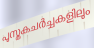
പുസ്തകചർച്ചകളിലും